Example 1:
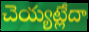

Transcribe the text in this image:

చెయ్యట్లేదా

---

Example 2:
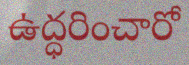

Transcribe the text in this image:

ఉద్ధరించారో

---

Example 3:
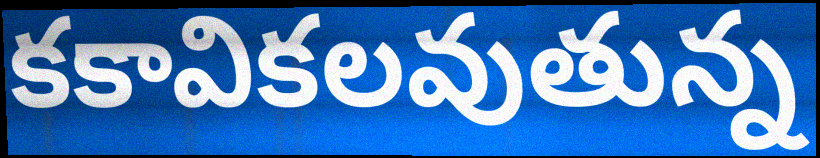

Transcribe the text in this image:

కకావికలవుతున్న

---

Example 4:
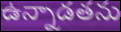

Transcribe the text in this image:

ఉన్నాడతను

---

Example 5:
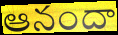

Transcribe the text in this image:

ఆనందా